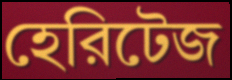
হেরিটেজ